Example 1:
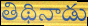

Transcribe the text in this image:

తిథినాడు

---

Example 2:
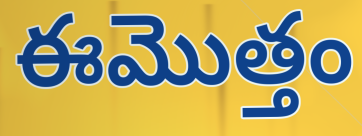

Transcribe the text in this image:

ఈమొత్తం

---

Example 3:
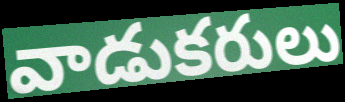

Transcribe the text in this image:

వాడుకరులు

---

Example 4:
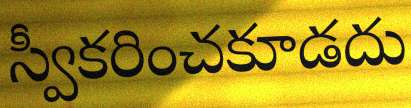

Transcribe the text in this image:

స్వీకరించకూడదు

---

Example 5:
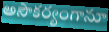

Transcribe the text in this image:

అసౌకర్యంగానూ